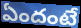
ఏందంటే